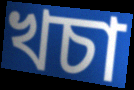
খচা